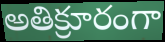
అతిక్రూరంగా